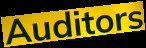
Auditors